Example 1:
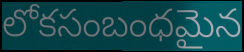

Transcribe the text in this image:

లోకసంబంధమైన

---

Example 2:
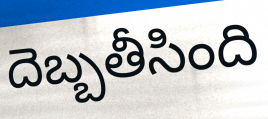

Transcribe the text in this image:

దెబ్బతీసింది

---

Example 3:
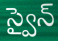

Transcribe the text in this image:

స్వైన్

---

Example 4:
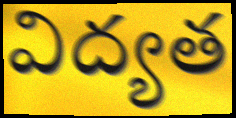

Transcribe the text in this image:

విద్యత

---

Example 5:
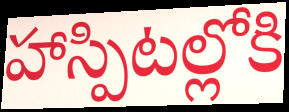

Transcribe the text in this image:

హాస్పిటల్లోకి